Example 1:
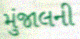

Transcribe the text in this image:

મુંજાલની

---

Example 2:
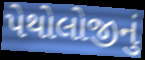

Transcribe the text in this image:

પેથોલોજીનું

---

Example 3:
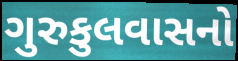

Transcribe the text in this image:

ગુરુકુલવાસનો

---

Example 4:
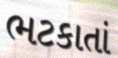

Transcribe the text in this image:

ભટકાતાં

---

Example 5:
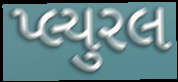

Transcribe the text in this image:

પ્લ્યુરલ